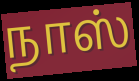
நாஸ்